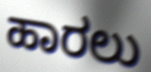
ಹಾರಲು